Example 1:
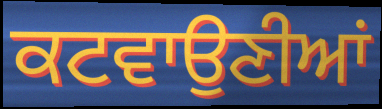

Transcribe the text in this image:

ਕਟਵਾਉਣੀਆਂ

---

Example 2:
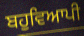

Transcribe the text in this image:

ਬਹੁਵਿਆਪੀ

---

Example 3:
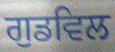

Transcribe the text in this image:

ਗੁਡਵਿਲ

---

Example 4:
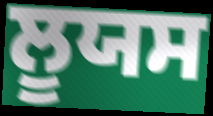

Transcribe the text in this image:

ਲੂਯਸ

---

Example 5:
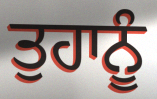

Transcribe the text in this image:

ਤੁਹਾਨੂੰ